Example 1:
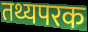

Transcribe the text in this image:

तथ्यपरक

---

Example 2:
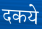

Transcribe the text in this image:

दकये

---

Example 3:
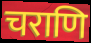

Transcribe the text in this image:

चराणि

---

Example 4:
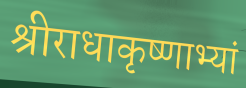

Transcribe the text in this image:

श्रीराधाकृष्णाभ्यां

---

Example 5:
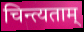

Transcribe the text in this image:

चिन्त्यताम्